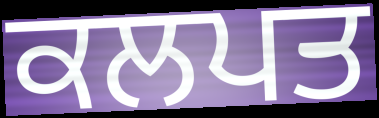
ਕਲਪਤ